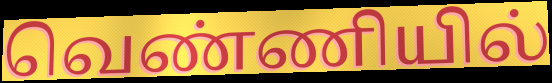
வெண்ணியில்